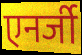
एनर्जी